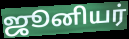
ஜூனியர்